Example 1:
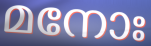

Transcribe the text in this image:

മനോഃ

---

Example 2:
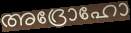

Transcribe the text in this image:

അദ്രോഹോ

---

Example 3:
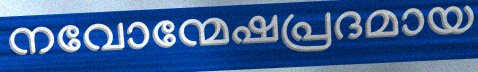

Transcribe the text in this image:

നവോന്മേഷപ്രദമായ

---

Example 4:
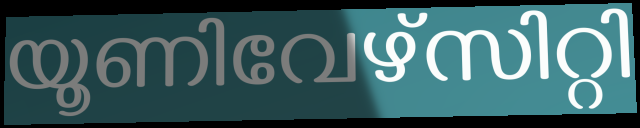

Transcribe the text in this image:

യൂണിവേഴ്സിറ്റി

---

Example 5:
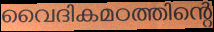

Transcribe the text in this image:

വൈദികമഠത്തിന്റെ